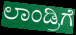
ಲಾಂಡ್ರಿಗೆ